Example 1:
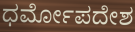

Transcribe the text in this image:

ಧರ್ಮೋಪದೇಶ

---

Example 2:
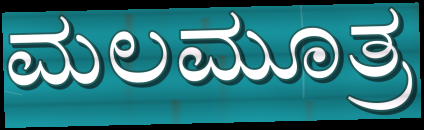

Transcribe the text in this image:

ಮಲಮೂತ್ರ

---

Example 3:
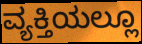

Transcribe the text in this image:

ವ್ಯಕ್ತಿಯಲ್ಲೂ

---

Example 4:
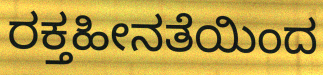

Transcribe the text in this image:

ರಕ್ತಹೀನತೆಯಿಂದ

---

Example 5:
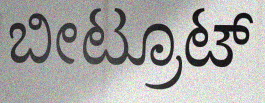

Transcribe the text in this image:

ಬೀಟ್ರೂಟ್